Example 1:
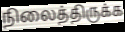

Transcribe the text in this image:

நிலைத்திருக்க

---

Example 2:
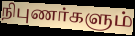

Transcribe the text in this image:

நிபுணர்களும்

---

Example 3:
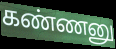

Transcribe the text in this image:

கண்ணனு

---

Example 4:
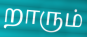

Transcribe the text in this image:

றாரும்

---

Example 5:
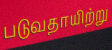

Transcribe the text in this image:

படுவதாயிற்று